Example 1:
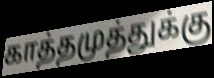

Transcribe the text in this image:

காத்தமுத்துக்கு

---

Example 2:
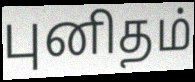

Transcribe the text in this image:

புனிதம்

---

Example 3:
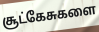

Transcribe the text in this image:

சூட்கேசுகளை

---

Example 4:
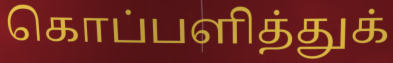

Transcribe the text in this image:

கொப்பளித்துக்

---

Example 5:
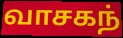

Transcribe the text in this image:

வாசகந்